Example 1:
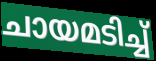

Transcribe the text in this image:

ചായമടിച്ച്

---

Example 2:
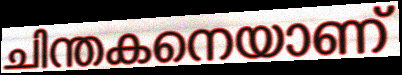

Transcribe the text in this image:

ചിന്തകനെയാണ്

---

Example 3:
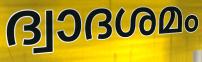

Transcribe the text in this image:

ദ്വാദശമം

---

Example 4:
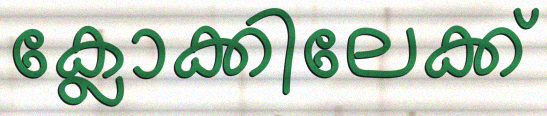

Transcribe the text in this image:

ക്ലോക്കിലേക്ക്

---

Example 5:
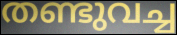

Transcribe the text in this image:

തണ്ടുവച്ച